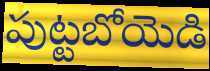
పుట్టబోయెడి